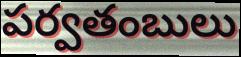
పర్వతంబులు